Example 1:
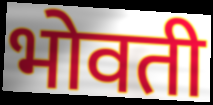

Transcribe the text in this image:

भोवती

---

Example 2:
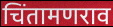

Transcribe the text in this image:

चिंतामणराव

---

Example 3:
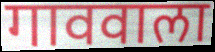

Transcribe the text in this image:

गाववाला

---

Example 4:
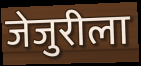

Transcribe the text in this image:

जेजुरीला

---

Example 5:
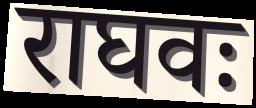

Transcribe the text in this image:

राघवः